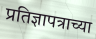
प्रतिज्ञापत्राच्या